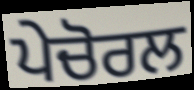
ਪੇਚੋਰਲ